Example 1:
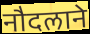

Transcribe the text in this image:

नौदलाने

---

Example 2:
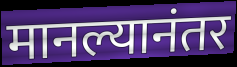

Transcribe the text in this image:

मानल्यानंतर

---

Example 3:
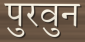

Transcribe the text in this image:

पुरवुन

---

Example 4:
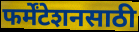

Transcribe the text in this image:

फर्मेंटेशनसाठी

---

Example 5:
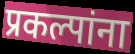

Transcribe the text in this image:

प्रकल्पांना